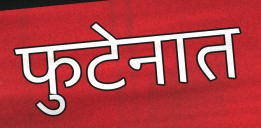
फुटेनात